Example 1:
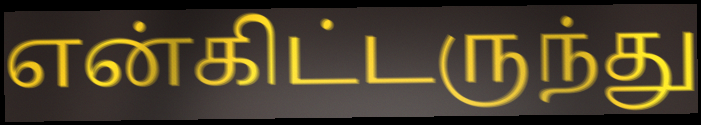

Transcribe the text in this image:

என்கிட்டருந்து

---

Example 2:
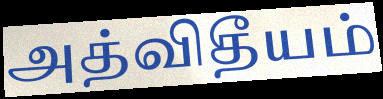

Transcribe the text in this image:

அத்விதீயம்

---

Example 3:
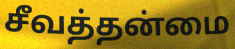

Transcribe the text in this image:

சீவத்தன்மை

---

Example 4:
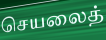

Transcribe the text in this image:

செயலைத்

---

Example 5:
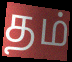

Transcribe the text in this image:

தம்